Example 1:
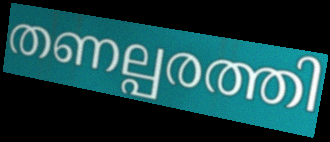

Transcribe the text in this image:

തണല്പരത്തി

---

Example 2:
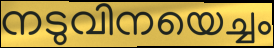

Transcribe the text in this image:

നടുവിനയെച്ചം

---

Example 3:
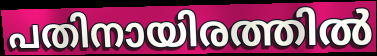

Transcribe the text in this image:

പതിനായിരത്തിൽ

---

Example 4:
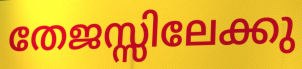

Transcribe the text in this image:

തേജസ്സിലേക്കു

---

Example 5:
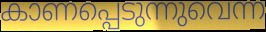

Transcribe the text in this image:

കാണപ്പെടുന്നുവെന്ന